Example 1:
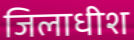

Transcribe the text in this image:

जिलाधीश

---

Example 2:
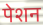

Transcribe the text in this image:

पेशन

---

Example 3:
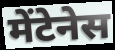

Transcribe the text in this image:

मेंटेनेस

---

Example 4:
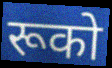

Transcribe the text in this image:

रूको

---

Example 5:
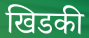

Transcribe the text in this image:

खिडकी